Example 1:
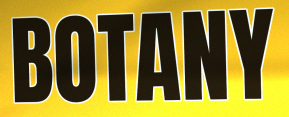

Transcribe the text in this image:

BOTANY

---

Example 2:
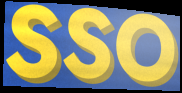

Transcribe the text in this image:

SSO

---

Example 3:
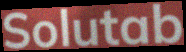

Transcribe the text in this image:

Solutab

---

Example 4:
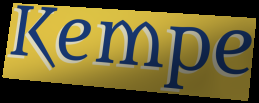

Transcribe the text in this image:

Kempe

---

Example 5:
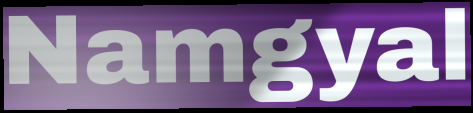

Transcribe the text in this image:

Namgyal